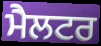
ਮੈਲਟਰ